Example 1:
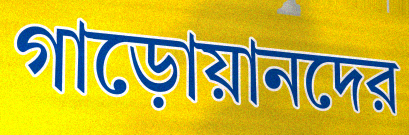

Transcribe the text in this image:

গাড়োয়ানদের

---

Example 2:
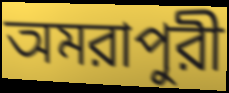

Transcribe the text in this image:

অমরাপুরী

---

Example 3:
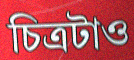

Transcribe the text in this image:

চিত্রটাও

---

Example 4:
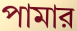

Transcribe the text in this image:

পামার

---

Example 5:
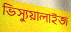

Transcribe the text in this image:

ভিস্যুয়ালাইজ